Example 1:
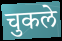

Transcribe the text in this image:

चुकले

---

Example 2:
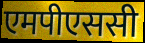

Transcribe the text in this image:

एमपीएससी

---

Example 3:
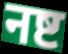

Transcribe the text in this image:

नष्ट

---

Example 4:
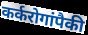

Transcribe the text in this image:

कर्करोगांपैकी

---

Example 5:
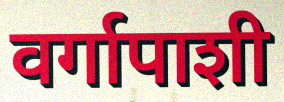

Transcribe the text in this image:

वर्गापाशी